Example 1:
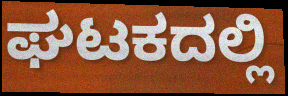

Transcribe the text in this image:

ಘಟಕದಲ್ಲಿ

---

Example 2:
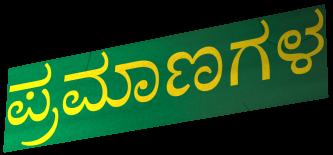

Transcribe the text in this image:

ಪ್ರಮಾಣಗಳ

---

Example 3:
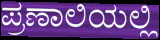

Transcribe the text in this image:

ಪ್ರಣಾಲಿಯಲ್ಲಿ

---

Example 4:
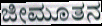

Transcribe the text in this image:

ಜೀಮೂತನ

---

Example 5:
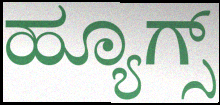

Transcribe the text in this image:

ಹ್ಯೂಗ್ಸ್